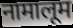
नामालूम